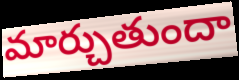
మార్చుతుందా